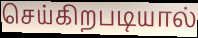
செய்கிறபடியால்